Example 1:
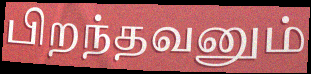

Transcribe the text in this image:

பிறந்தவனும்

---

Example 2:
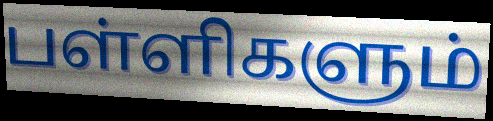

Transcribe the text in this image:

பள்ளிகளும்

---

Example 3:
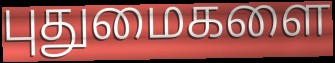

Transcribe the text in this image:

புதுமைகளை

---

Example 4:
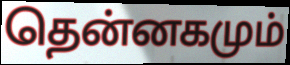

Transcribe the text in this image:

தென்னகமும்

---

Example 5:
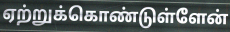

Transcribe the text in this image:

ஏற்றுக்கொண்டுள்ளேன்